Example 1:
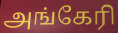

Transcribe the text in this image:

அங்கேரி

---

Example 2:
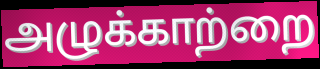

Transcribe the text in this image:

அழுக்காற்றை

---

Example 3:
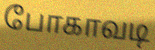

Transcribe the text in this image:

போகாவடி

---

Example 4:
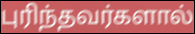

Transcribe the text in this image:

புரிந்தவர்களால்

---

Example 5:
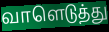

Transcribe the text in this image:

வாளெடுத்து